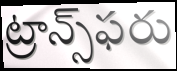
ట్రాన్స్‌ఫరు